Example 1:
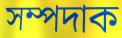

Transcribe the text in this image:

সম্পদাক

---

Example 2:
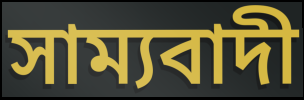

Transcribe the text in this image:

সাম্যবাদী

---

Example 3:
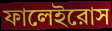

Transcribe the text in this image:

ফালেইরোস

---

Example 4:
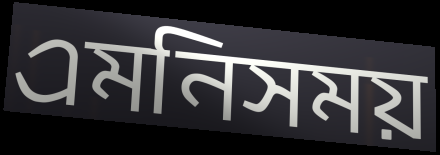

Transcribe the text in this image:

এমনিসময়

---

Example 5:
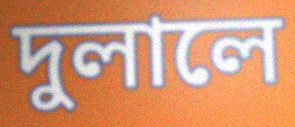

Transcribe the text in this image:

দুলালে